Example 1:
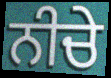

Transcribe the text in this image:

ਨੀਚੇ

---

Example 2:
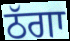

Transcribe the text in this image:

ਠੱਗਾ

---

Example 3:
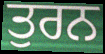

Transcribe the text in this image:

ਤੁਰਨ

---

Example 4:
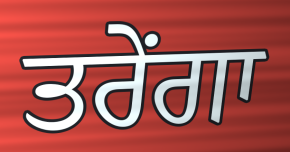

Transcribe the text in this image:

ਤਰੇਂਗਾ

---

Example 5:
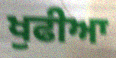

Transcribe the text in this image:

ਖੁਫੀਆ